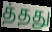
த்தது